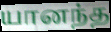
யானந்த